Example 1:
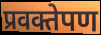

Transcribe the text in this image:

प्रवक्तेपण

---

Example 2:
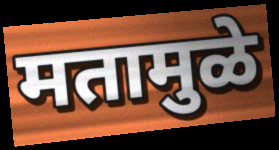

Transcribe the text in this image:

मतामुळे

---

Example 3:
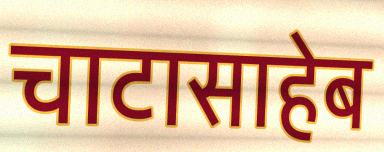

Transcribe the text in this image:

चाटासाहेब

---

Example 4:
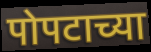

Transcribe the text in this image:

पोपटाच्या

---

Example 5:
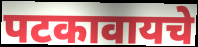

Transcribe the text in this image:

पटकावायचे